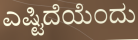
ಎಷ್ಟಿದೆಯೆಂದು